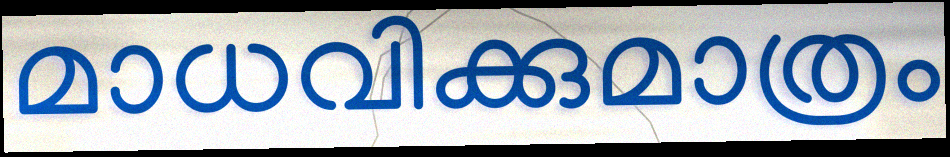
മാധവിക്കുമാത്രം